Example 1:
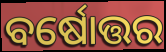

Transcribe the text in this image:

ବର୍ଷୋତ୍ତର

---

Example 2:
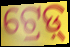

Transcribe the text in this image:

ଟ୍ରେଡ଼୍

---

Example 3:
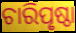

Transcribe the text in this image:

ଚାରିପୃଷ୍ଠା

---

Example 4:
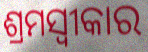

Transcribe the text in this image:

ଶ୍ରମସ୍ୱୀକାର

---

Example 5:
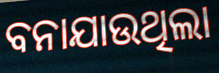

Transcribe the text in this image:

ବନାଯାଉଥିଲା